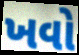
ખવો